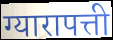
ग्यारापत्ती